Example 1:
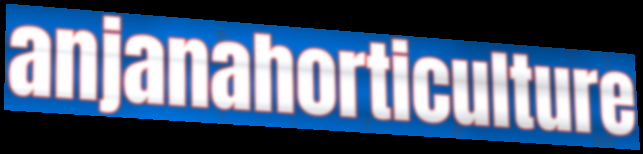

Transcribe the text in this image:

anjanahorticulture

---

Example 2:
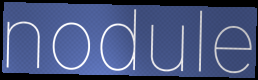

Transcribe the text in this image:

nodule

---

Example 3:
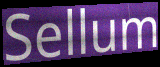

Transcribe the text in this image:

Sellum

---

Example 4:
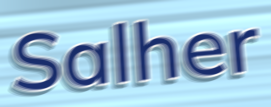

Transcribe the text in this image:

Salher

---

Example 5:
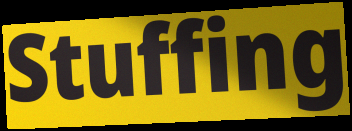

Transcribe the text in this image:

Stuffing